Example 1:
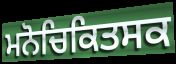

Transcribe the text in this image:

ਮਨੋਚਿਕਿਤਸਕ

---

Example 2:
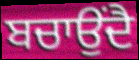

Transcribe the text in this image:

ਬਚਾਉਂਦੈ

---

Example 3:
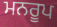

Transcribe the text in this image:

ਮਨਰੂਪ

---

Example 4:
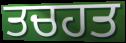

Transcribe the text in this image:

ਤਚਹਤ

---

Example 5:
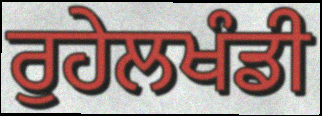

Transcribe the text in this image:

ਰੁਹੇਲਖੰਡੀ